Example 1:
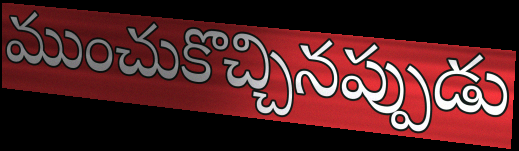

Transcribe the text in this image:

ముంచుకొచ్చినప్పుడు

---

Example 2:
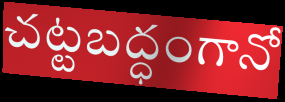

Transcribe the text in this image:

చట్టబద్ధంగానో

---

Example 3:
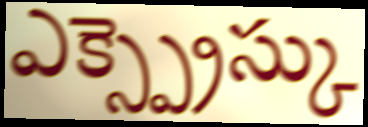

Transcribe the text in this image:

ఎక్స్ప్రెస్కు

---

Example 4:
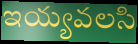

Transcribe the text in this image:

ఇయ్యవలసి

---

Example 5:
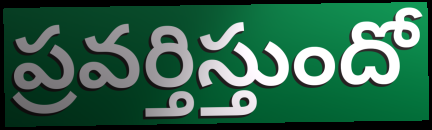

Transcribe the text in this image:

ప్రవర్తిస్తుందో